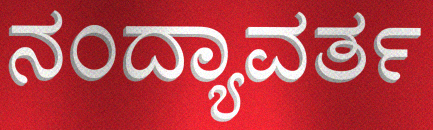
ನಂದ್ಯಾವರ್ತ